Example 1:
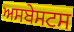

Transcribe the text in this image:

ਅਸਬੇਸਟਸ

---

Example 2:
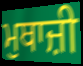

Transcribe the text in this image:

ਮੁਥਾਜ਼ੀ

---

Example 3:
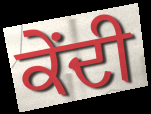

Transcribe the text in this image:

ਕੇਂਦੀ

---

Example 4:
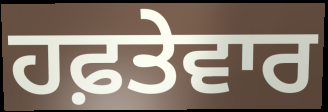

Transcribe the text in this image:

ਹਫ਼ਤੇਵਾਰ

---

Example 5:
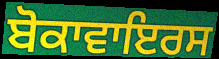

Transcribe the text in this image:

ਬੋਕਾਵਾਇਰਸ